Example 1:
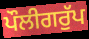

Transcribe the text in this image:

ਪੌਲੀਗਰੁੱਪ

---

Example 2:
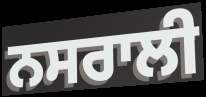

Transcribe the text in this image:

ਨਸਰਾਲੀ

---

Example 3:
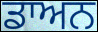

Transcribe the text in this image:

ਡਾਅਨ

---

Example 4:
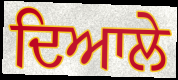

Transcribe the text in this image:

ਦਿਆਲੇ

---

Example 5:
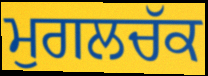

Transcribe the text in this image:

ਮੁਗਲਚੱਕ